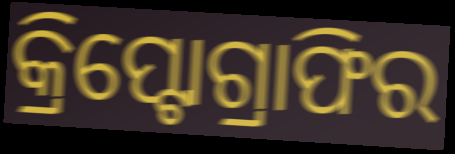
କ୍ରିପ୍ଟୋଗ୍ରାଫିର